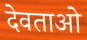
देवताओ